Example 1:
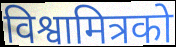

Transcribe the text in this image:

विश्वामित्रको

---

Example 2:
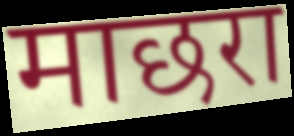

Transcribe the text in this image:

माछरा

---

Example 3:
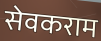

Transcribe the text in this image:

सेवकराम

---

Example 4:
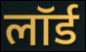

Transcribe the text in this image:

लॉर्ड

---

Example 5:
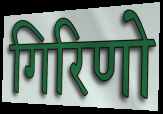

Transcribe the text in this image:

गिरिणो